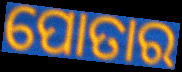
ପୋତାର